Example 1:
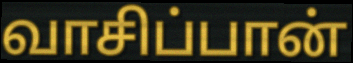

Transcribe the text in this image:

வாசிப்பான்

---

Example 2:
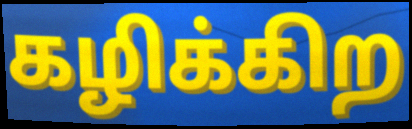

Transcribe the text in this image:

கழிக்கிற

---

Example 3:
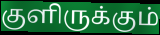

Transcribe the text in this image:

குளிருக்கும்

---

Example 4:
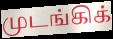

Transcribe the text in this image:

முடங்கிக்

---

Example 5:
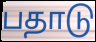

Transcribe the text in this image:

பதாடு